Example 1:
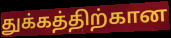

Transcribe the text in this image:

துக்கத்திற்கான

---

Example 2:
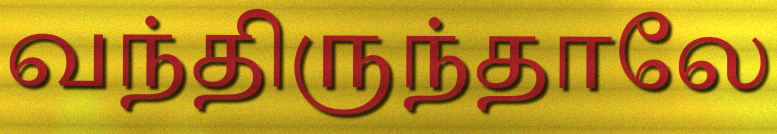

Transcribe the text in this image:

வந்திருந்தாலே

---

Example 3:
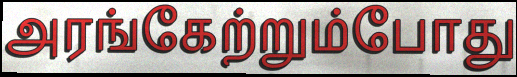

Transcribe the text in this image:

அரங்கேற்றும்போது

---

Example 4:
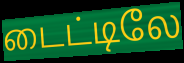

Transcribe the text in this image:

டைட்டிலே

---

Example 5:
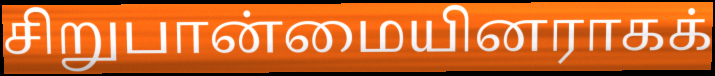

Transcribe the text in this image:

சிறுபான்மையினராகக்